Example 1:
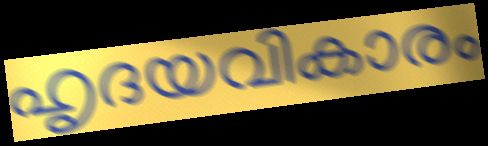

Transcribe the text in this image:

ഹൃദയവികാരം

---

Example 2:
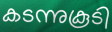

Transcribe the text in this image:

കടന്നുകൂടി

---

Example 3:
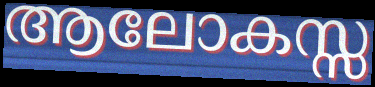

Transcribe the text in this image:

ആലോകസ്സ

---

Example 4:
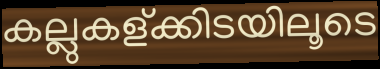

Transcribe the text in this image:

കല്ലുകള്ക്കിടയിലൂടെ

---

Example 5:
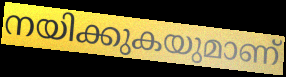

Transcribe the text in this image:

നയിക്കുകയുമാണ്